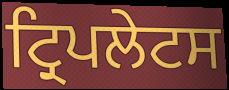
ਟ੍ਰਿਪਲੇਟਸ